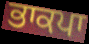
ਭਾਕਪਾ